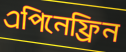
এপিনেফ্রিন